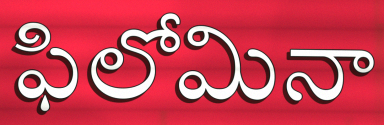
ఫిలోమినా